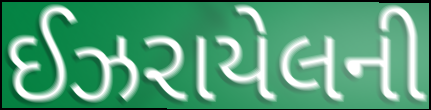
ઈઝરાયેલની